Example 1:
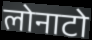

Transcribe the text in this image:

लोनाटो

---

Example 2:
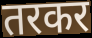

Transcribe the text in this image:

तरकर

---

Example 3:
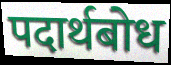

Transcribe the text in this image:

पदार्थबोध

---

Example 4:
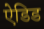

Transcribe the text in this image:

ऐडिड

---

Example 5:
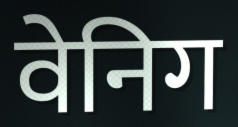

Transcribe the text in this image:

वेनिग